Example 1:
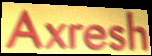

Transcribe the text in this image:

Axresh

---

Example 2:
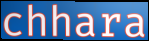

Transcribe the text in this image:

chhara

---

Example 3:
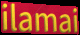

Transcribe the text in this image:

ilamai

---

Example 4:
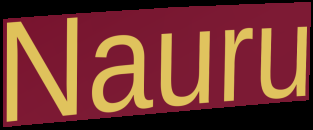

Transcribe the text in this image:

Nauru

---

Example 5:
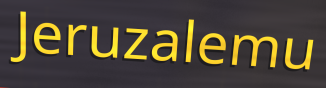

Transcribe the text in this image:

Jeruzalemu